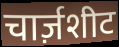
चार्ज़शीट